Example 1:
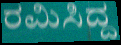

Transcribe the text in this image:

ರಮಿಸಿದ್ದ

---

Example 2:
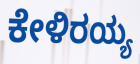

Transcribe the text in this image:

ಕೇಳಿರಯ್ಯ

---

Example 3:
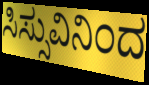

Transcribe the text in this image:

ಸಿಸ್ಸುವಿನಿಂದ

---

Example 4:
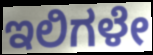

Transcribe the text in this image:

ಇಲಿಗಳೇ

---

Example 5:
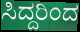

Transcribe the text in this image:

ಸಿದ್ದರಿಂದ